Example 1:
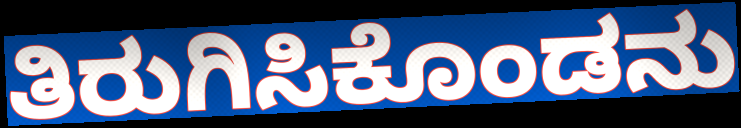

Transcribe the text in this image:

ತಿರುಗಿಸಿಕೊಂಡನು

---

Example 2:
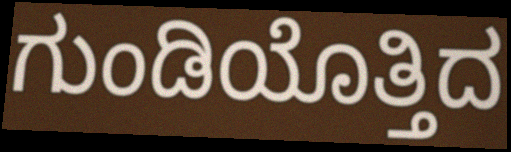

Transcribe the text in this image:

ಗುಂಡಿಯೊತ್ತಿದ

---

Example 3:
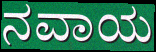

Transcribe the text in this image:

ನವಾಯ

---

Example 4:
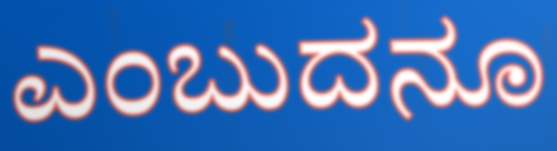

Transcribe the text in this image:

ಎಂಬುದನೂ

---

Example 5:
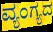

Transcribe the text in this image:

ವ್ಯಂಗ್ಯದ